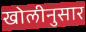
खोलीनुसार